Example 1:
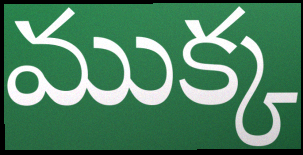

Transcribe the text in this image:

ముక్క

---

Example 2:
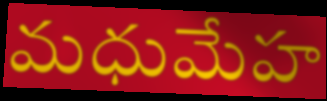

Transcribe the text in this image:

మధుమేహ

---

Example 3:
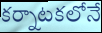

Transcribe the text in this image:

కర్నాటకలోనే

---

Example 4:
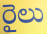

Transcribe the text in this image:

రైలు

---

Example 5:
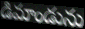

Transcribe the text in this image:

డిమాండును